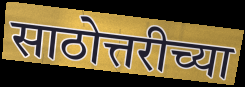
साठोत्तरीच्या